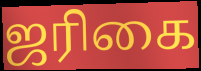
ஜரிகை